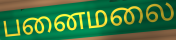
பனைமலை